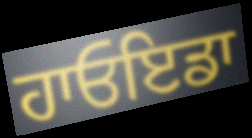
ਹਾਓਇਡਾ